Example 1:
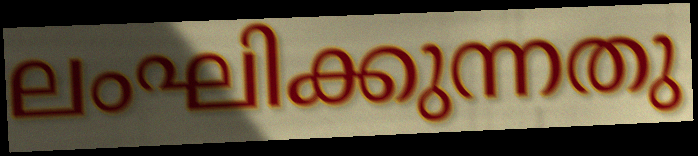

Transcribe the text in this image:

ലംഘിക്കുന്നതു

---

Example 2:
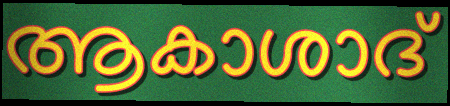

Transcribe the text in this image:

ആകാശാദ്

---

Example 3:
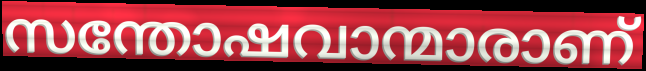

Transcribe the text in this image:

സന്തോഷവാന്മാരാണ്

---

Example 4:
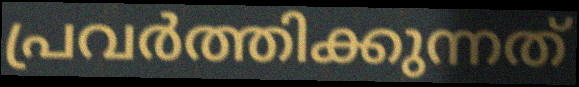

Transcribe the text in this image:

പ്രവർത്തിക്കുന്നത്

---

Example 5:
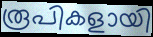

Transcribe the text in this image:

രൂപികളായി